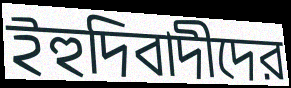
ইহুদিবাদীদের